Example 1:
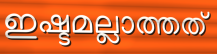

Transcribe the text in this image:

ഇഷ്ടമല്ലാത്തത്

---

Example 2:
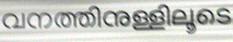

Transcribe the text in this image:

വനത്തിനുള്ളിലൂടെ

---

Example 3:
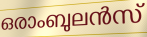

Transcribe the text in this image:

ഒരാംബുലൻസ്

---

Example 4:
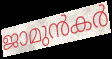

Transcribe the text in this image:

ജാമുൻകർ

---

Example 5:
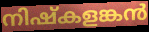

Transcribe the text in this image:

നിഷ്കളങ്കൻ